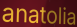
anatolia